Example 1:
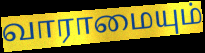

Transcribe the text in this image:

வாராமையும்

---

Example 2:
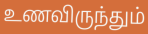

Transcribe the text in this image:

உணவிருந்தும்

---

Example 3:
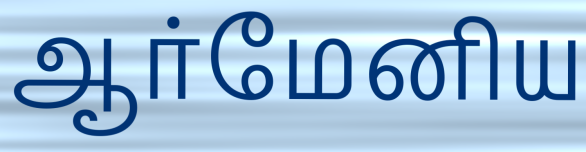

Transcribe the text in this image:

ஆர்மேனிய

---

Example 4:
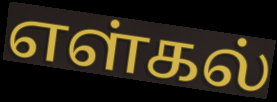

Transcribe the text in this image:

எள்கல்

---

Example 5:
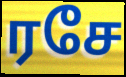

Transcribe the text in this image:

ரசே